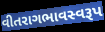
વીતરાગભાવસ્વરૂપ